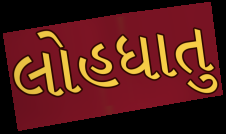
લોહધાતુ